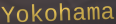
Yokohama